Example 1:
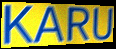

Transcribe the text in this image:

KARU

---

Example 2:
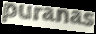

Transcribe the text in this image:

puranas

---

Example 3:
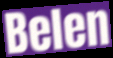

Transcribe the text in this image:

Belen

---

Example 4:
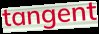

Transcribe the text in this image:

tangent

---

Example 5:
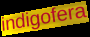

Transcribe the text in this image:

indigofera